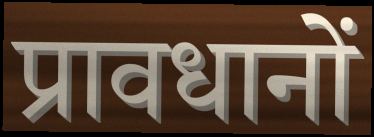
प्रावधानों